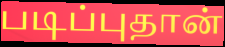
படிப்புதான்